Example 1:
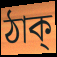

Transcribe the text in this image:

ঠাক্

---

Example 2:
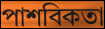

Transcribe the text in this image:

পাশবিকতা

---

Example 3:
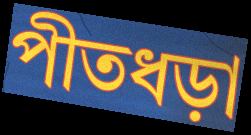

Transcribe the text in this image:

পীতধড়া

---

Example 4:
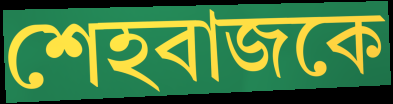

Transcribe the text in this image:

শেহবাজকে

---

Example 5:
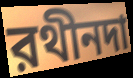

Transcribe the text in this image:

রথীনদা